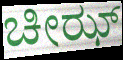
ಚೀಝ್